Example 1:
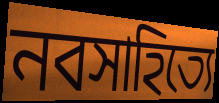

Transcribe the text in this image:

নবসাহিত্যে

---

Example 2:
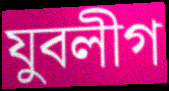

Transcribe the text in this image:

যুবলীগ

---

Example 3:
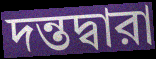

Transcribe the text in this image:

দন্তদ্বারা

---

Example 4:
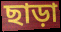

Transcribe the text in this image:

ছাড়া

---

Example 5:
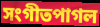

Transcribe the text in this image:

সংগীতপাগল